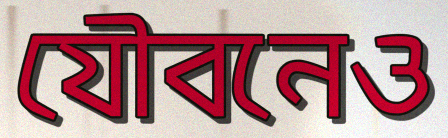
যৌবনেও